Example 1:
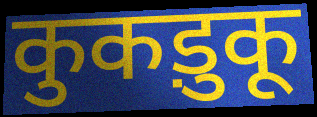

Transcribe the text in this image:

कुकड़ुकू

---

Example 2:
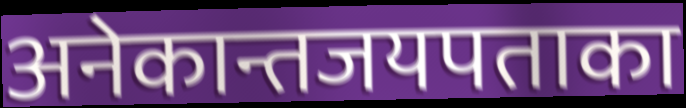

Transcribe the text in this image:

अनेकान्तजयपताका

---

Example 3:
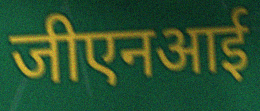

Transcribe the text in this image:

जीएनआई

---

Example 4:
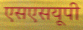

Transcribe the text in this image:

एसएसयूपी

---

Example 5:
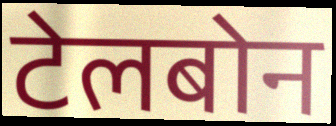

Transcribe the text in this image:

टेलबोन